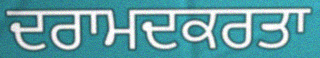
ਦਰਾਮਦਕਰਤਾ